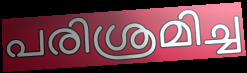
പരിശ്രമിച്ച